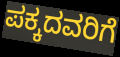
ಪಕ್ಕದವರಿಗೆ